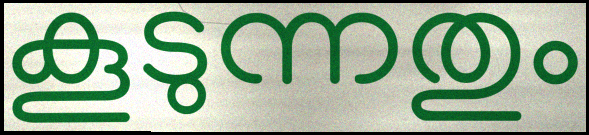
കൂടുന്നതും